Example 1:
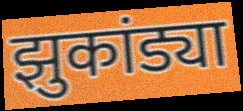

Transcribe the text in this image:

झुकांड्या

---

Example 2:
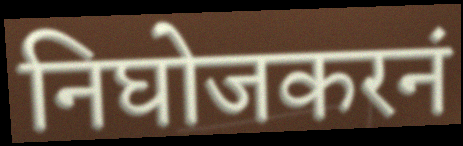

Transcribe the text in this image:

निघोजकरनं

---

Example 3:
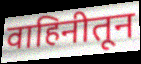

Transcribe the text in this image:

वाहिनीतून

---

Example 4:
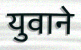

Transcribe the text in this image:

युवाने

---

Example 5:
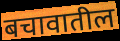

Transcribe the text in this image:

बचावातील